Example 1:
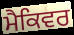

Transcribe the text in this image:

ਮੈਕਿਵਰ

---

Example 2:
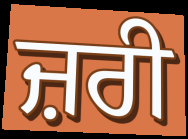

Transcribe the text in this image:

ਜ਼ਰੀ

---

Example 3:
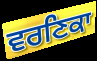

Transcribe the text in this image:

ਵਰਣਿਕਾ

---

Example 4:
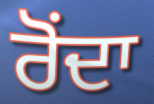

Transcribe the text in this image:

ਰੋਂਦਾ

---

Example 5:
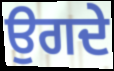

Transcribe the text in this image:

ਉਗਦੇ